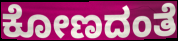
ಕೋಣದಂತೆ